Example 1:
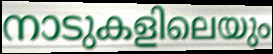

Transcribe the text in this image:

നാടുകളിലെയും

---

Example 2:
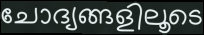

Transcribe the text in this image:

ചോദ്യങ്ങളിലൂടെ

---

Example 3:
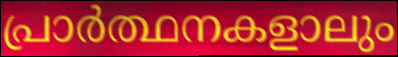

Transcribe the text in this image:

പ്രാർത്ഥനകളാലും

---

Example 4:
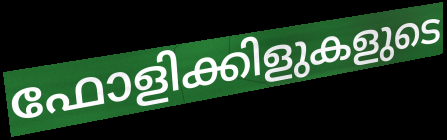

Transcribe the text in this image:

ഫോളിക്കിളുകളുടെ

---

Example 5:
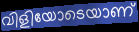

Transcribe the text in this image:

വിളിയോടെയാണ്